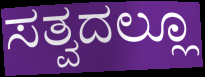
ಸತ್ವದಲ್ಲೂ